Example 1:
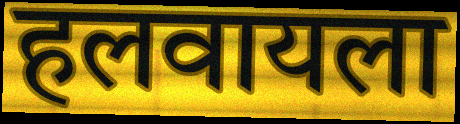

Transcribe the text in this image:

हलवायला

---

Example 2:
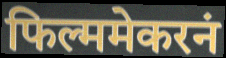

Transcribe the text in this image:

फिल्ममेकरनं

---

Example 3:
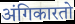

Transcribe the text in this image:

अंगिकारतो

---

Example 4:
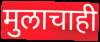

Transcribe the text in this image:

मुलाचाही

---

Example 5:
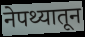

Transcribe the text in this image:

नेपथ्यातून